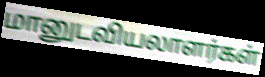
மானுடவியலாளர்கள்